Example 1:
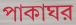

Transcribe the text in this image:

পাকাঘর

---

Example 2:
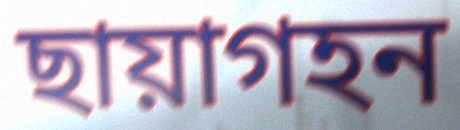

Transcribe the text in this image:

ছায়াগহন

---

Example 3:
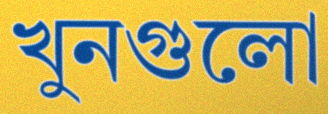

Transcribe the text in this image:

খুনগুলো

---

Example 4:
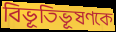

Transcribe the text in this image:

বিভূতিভূষণকে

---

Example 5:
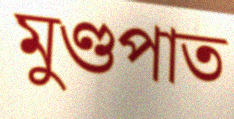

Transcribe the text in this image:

মুণ্ডপাত